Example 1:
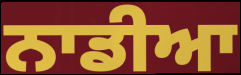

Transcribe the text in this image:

ਨਾਡੀਆ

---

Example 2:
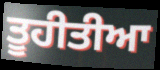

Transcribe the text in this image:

ਤੂਹੀਤੀਆ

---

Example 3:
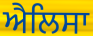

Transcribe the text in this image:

ਐਲਿਸਾ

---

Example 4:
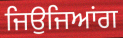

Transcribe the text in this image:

ਜਿਉਜਿਆਂਗ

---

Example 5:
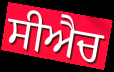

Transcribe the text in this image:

ਸੀਐਚ